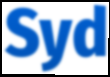
Syd